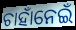
ଚାହାଁନେଇଁ